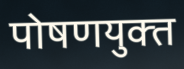
पोषणयुक्‍त